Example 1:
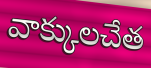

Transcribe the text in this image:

వాక్కులచేత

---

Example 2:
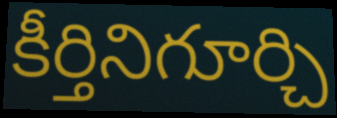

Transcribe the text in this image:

కీర్తినిగూర్చి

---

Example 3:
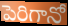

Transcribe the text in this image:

పెరిగానో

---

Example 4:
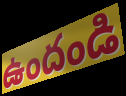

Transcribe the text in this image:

ఉందండి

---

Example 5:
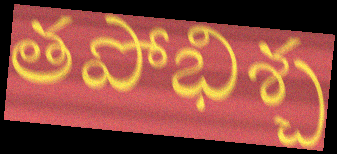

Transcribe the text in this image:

తపోభిశ్చ